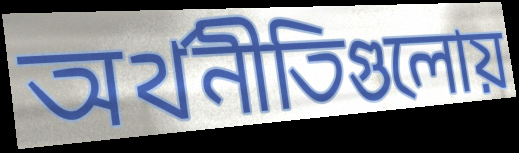
অর্থনীতিগুলোয়